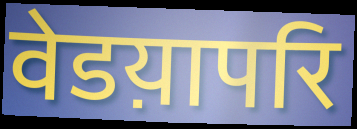
वेडय़ापरि